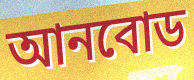
আনবোড